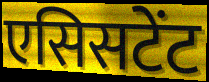
एसिसटेंट